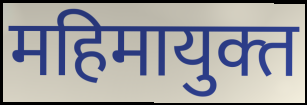
महिमायुक्‍त